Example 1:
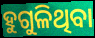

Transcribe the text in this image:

ହୁଗୁଳିଥିବା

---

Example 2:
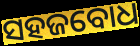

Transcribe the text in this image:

ସହଜବୋଧ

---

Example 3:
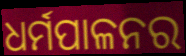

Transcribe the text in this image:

ଧର୍ମପାଳନର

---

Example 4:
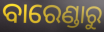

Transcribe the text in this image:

ବାରେଣ୍ଡାରୁ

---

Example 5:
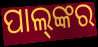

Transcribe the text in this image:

ପାଲ୍‍ଙ୍କର